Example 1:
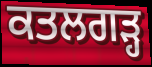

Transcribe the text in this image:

ਕਤਲਗੜ੍ਹ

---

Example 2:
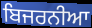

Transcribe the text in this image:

ਬਿਜਰਨੀਆ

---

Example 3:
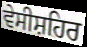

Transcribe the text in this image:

ਵੇਸੀਸ਼ਹਿਰ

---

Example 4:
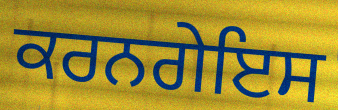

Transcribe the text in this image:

ਕਰਨਗੇਇਸ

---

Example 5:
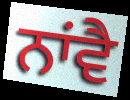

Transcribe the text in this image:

ਨਾਂਵੈ